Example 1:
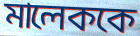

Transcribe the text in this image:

মালেককে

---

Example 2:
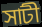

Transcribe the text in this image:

সাটী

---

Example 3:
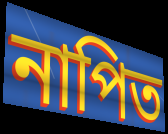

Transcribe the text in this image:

নাপিত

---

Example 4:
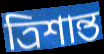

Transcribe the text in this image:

ত্রিশান্ত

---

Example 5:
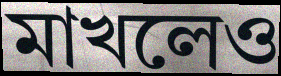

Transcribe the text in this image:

মাখলেও